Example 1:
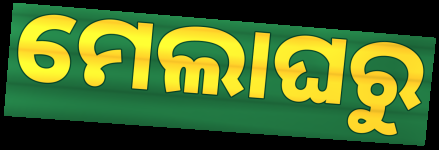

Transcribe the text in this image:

ମେଲାଘରୁ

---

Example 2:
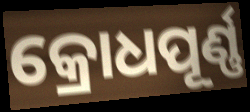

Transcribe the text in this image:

କ୍ରୋଧପୂର୍ଣ୍ଣ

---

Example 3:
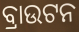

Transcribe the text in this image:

ବ୍ରାଉଟନ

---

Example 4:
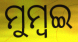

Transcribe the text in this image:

ମୁମ୍ୱଇ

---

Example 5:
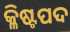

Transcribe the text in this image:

କ୍ଳିଷ୍ଟପଦ